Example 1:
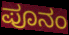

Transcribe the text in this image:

ಪೂನಂ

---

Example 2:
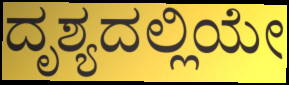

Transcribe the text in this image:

ದೃಶ್ಯದಲ್ಲಿಯೇ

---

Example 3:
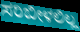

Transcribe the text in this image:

ಸರಿಬೀಳಲಿಲ್ಲ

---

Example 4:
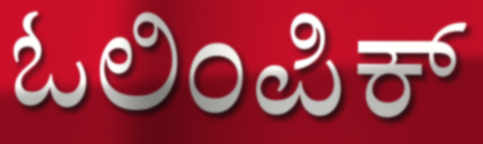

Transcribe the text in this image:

ಓಲಿಂಪಿಕ್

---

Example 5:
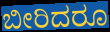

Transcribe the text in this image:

ಬೀರಿದರೂ